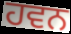
ਹਵਨ